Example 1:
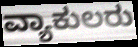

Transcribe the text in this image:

ವ್ಯಾಕುಲರು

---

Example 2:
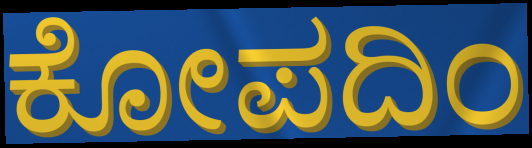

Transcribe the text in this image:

ಕೋಪದಿಂ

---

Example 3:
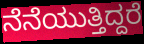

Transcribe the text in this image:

ನೆನೆಯುತ್ತಿದ್ದರೆ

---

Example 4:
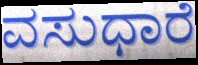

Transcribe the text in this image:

ವಸುಧಾರೆ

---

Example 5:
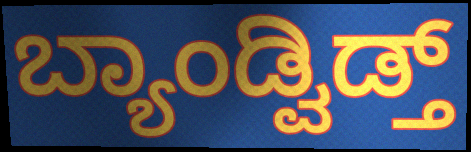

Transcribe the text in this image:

ಬ್ಯಾಂಡ್ವಿಡ್ತ್